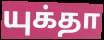
யுக்தா